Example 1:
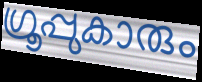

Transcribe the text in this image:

ഗ്രൂപ്പുകാരും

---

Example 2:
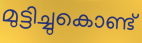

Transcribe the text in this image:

മുട്ടിച്ചുകൊണ്ട്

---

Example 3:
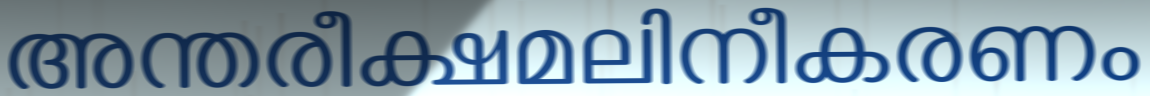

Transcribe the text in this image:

അന്തരീക്ഷമലിനീകരണം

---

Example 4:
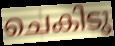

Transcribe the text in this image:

ചെകിടു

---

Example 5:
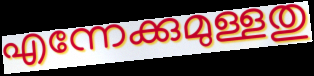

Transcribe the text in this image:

എന്നേക്കുമുള്ളതു